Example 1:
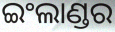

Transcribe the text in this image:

ଇଂଲାଣ୍ଡର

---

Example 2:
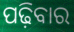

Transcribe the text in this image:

ପଢ଼ିବାର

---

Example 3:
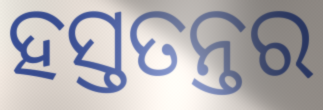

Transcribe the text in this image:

ହସ୍ତତନ୍ତର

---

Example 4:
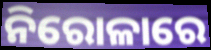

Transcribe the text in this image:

ନିରୋଳାରେ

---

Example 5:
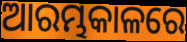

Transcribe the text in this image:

ଆରମ୍ଭକାଳରେ